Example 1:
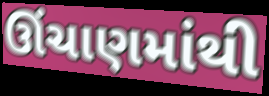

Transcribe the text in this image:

ઊંચાણમાંથી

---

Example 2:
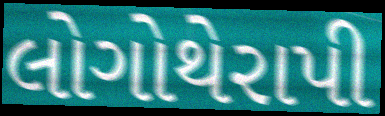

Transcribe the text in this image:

લોગોથેરાપી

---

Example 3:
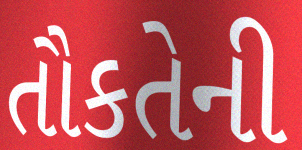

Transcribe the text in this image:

તૌકતેની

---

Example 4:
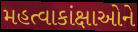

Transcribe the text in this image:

મહત્વાકાંક્ષાઓને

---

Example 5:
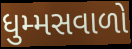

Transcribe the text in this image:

ધુમ્મસવાળો